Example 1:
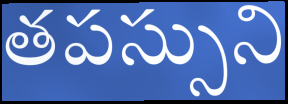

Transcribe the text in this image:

తపస్సుని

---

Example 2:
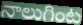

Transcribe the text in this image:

నాలుగింట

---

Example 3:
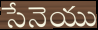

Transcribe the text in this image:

సేనెయు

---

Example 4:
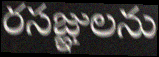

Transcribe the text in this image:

రసజ్ఞులను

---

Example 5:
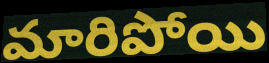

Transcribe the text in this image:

మారిపోయి